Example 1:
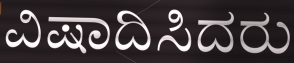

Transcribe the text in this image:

ವಿಷಾದಿಸಿದರು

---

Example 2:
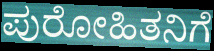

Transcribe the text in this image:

ಪುರೋಹಿತನಿಗೆ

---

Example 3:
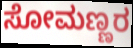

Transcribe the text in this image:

ಸೋಮಣ್ಣರ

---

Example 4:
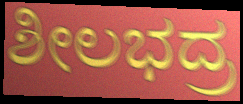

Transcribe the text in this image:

ಶೀಲಭದ್ರ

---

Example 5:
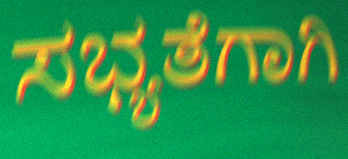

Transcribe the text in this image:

ಸಭ್ಯತೆಗಾಗಿ